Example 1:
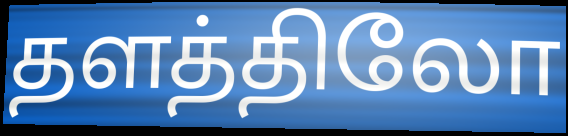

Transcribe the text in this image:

தளத்திலோ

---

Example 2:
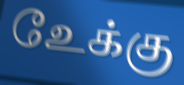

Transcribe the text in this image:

உேக்கு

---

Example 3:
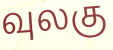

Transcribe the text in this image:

வுலகு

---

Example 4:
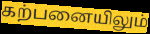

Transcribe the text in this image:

கற்பனையிலும்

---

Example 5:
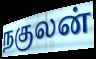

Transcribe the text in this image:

நகுலன்